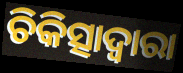
ଚିକିତ୍ସାଦ୍ଵାରା